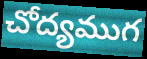
చోద్యముగ